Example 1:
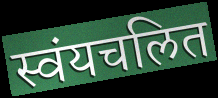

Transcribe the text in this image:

स्वंयचलित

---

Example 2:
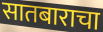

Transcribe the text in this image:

सातबाराचा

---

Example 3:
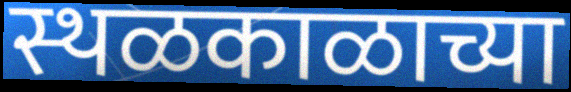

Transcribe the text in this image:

स्थळकाळाच्या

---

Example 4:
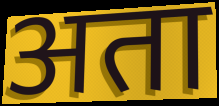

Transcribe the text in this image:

अता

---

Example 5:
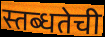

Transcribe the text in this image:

स्तब्धतेची